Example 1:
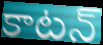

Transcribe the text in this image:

కాటన్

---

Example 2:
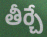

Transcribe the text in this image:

తీర్చే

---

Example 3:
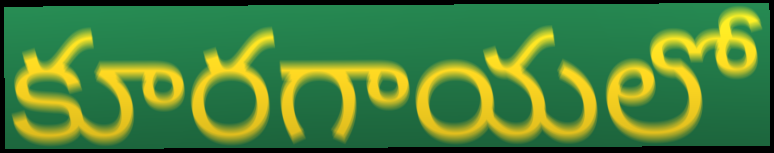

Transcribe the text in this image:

కూరగాయలో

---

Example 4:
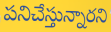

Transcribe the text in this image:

పనిచేస్తున్నారని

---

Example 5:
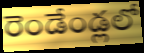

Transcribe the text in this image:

రెండేండ్లలో